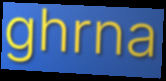
ghrna